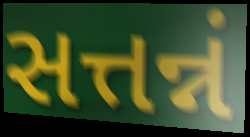
સત્તન્નં